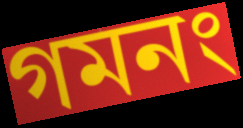
গমনং